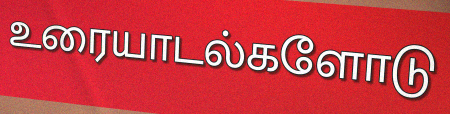
உரையாடல்களோடு